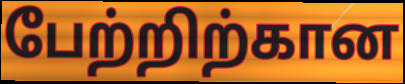
பேற்றிற்கான